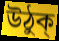
উঠুক্